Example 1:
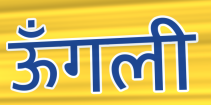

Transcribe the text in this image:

ऊँगली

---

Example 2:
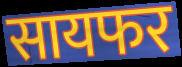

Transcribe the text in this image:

सायफर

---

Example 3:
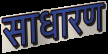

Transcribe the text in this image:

साधारण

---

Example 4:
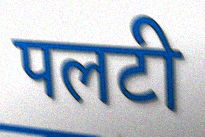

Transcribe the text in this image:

पलटी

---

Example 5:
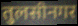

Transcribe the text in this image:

तुलसीनगर